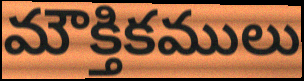
మౌక్తికములు